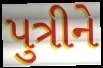
પુત્રીને